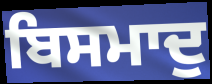
ਬਿਸਮਾਦੁ